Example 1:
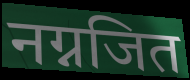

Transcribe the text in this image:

नग्नजित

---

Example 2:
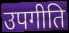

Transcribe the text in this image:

उपगीति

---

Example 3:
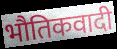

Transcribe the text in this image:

भौतिकवादी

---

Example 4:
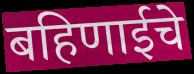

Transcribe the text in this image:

बहिणाईचे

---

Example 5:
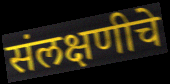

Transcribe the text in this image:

संलक्षणीचे